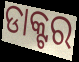
ଡାକ୍ଟର